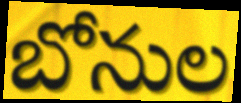
బోనుల